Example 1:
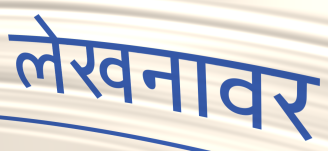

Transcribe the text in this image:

लेखनावर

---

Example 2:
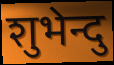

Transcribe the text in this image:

शुभेन्दु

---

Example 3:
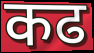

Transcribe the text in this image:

कढ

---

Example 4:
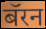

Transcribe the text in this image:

बॅरन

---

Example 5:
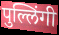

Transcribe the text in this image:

पुल्लिंगी